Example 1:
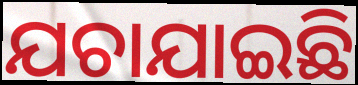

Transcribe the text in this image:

ଯଚାଯାଇଛି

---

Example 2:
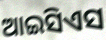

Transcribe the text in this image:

ଆଇସିଏସ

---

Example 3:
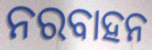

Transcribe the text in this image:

ନରବାହନ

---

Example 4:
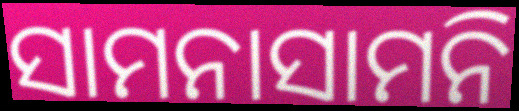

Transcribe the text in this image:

ସାମନାସାମନି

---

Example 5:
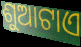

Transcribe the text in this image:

ଶୁଆଟାଏ